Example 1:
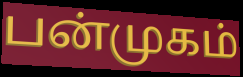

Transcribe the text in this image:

பன்முகம்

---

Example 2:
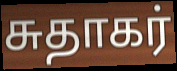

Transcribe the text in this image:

சுதாகர்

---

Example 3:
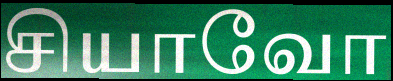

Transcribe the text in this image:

சியாவோ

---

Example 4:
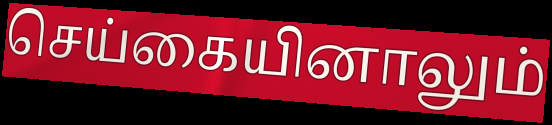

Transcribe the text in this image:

செய்கையினாலும்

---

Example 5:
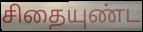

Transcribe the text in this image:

சிதையுண்ட